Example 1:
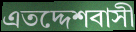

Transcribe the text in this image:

এতদ্দেশবাসী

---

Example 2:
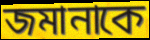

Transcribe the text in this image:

জমানাকে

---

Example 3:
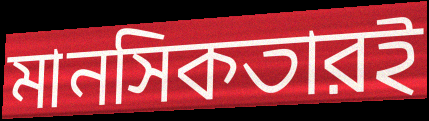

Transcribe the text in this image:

মানসিকতারই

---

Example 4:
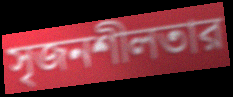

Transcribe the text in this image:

সৃজনশীলতার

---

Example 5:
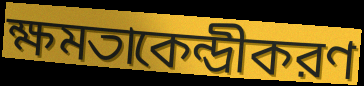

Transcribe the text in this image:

ক্ষমতাকেন্দ্রীকরণ